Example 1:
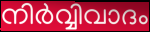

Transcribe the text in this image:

നിർവ്വിവാദം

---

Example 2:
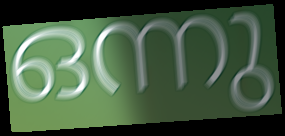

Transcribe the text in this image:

ഒന്നു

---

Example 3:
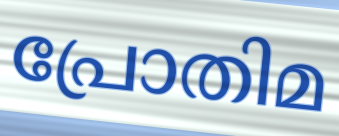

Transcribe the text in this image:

പ്രോതിമ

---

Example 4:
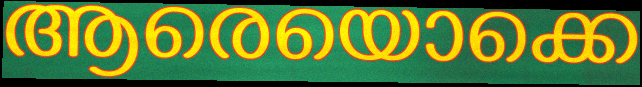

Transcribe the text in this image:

ആരെയൊക്കെ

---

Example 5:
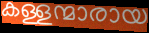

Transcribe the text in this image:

കള്ളന്മാരായ